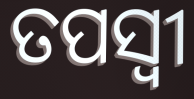
ତପସ୍ବୀ